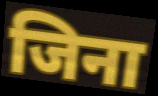
जिना